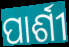
ପାର୍ଶୀ